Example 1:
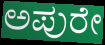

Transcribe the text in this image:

ಅಪುರೇ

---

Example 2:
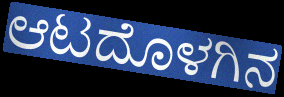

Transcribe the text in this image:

ಆಟದೊಳಗಿನ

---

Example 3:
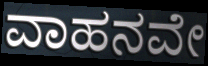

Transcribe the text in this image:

ವಾಹನವೇ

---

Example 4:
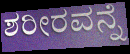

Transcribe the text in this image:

ಶರೀರವನ್ನೆ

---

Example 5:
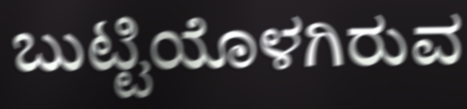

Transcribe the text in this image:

ಬುಟ್ಟಿಯೊಳಗಿರುವ